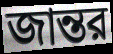
জান্তর